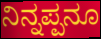
ನಿನ್ನಪ್ಪನೂ